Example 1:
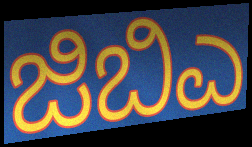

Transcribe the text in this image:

ಜಿಬಿಎ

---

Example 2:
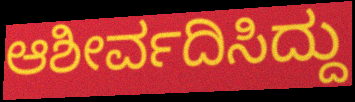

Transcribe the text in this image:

ಆಶೀರ್ವದಿಸಿದ್ದು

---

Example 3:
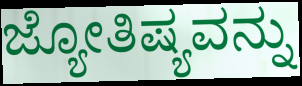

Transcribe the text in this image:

ಜ್ಯೋತಿಷ್ಯವನ್ನು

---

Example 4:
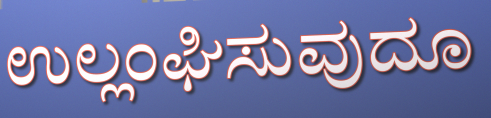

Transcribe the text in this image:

ಉಲ್ಲಂಘಿಸುವುದೂ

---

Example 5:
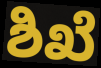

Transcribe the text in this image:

ಶಿಖೆ